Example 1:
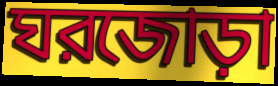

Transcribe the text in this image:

ঘরজোড়া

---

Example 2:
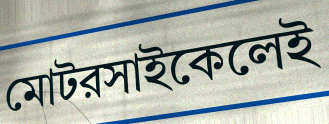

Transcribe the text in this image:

মোটরসাইকেলেই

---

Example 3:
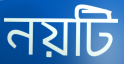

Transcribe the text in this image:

নয়টি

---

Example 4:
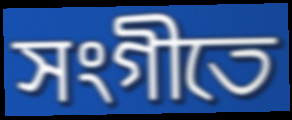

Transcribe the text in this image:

সংগীতে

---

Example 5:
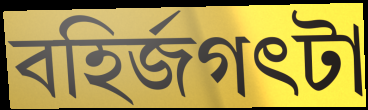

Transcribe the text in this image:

বহির্জগৎটা